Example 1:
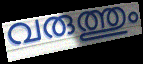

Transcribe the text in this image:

വരുത്തും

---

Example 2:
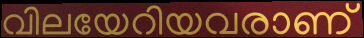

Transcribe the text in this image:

വിലയേറിയവരാണ്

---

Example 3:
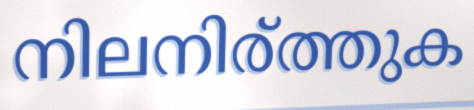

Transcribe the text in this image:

നിലനിര്ത്തുക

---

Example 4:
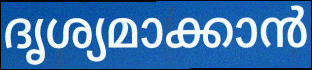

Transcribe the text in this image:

ദൃശ്യമാക്കാൻ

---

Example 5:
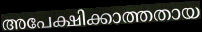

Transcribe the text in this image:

അപേക്ഷിക്കാത്തതായ